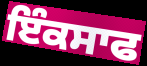
ਇੰਕਸਾਫ